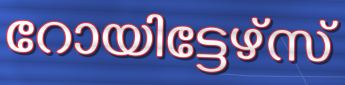
റോയിട്ടേഴ്സ്